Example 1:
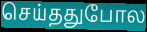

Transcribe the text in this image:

செய்ததுபோல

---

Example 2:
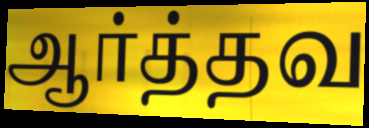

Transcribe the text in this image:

ஆர்த்தவ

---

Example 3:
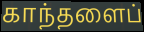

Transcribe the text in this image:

காந்தளைப்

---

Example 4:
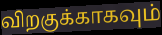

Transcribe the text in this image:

விறகுக்காகவும்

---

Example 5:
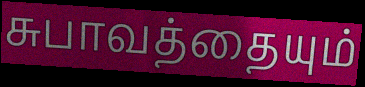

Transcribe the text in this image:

சுபாவத்தையும்